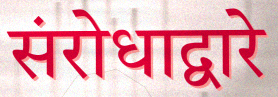
संरोधाद्वारे